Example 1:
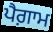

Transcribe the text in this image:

ਪੈਗ਼ਾਮ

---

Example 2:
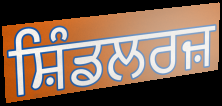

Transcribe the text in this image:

ਸ਼ਿੰਡਲਰਜ਼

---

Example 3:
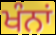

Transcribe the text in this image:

ਖੰਨਾਂ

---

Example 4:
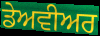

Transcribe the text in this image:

ਡੇਅਵੀਅਰ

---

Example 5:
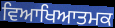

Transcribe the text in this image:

ਵਿਆਖਿਆਤਮਕ